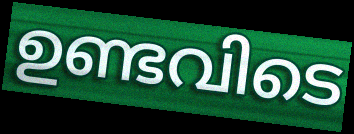
ഉണ്ടവിടെ